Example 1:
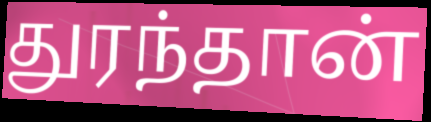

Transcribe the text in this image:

துரந்தான்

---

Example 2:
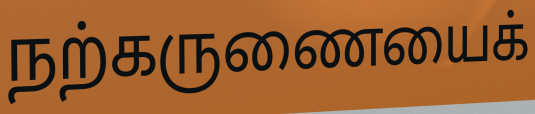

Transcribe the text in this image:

நற்கருணையைக்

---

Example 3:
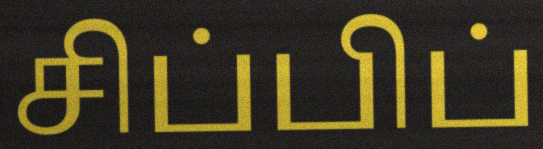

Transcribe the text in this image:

சிப்பிப்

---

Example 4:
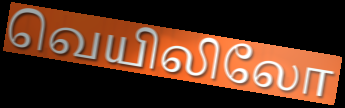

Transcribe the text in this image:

வெயிலிலோ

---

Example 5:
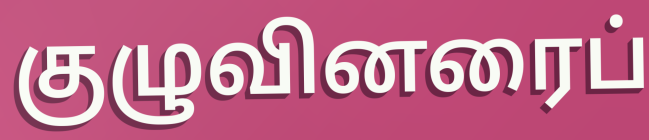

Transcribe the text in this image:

குழுவினரைப்